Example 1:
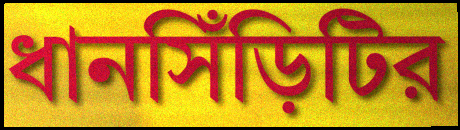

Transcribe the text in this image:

ধানসিঁড়িটির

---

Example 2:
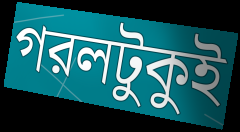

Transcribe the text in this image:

গরলটুকুই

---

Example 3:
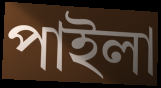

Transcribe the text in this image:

পাইলা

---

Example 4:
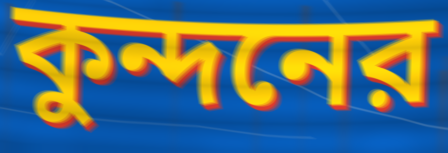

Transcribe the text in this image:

কুন্দনের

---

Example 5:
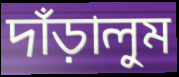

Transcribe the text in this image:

দাঁড়ালুম